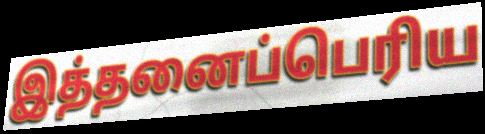
இத்தனைப்பெரிய